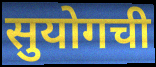
सुयोगची